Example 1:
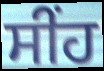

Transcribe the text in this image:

ਸੀਂਹ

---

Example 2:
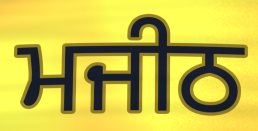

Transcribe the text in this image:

ਮਜੀਠ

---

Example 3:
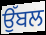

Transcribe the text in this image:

ਉੱਬਲ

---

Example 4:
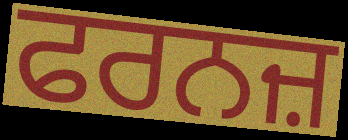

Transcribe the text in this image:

ਫਰਨਜ਼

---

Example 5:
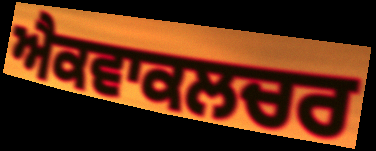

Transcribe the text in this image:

ਐਕਵਾਕਲਚਰ